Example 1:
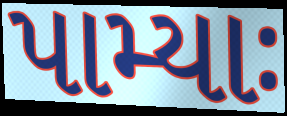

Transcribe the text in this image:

પામ્યાઃ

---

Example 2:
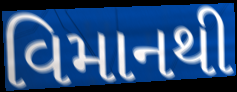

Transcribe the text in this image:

વિમાનથી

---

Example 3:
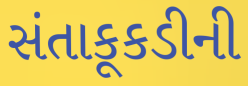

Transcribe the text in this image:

સંતાકૂકડીની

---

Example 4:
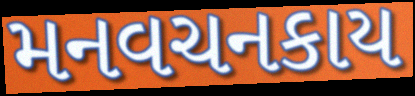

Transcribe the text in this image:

મનવચનકાય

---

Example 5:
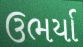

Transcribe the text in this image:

ઉભર્યા